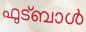
ഫുട്ബാൾ